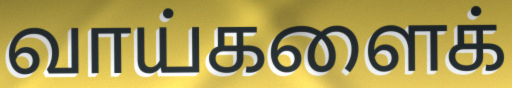
வாய்களைக்